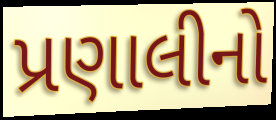
પ્રણાલીનો